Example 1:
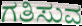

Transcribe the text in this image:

ಗತಿಸುವ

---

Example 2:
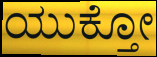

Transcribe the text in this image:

ಯುಕ್ತೋ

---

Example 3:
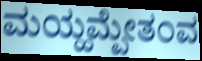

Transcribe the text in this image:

ಮಯ್ಹಮ್ಪೇತಂವ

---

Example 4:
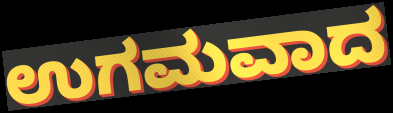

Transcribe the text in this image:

ಉಗಮವಾದ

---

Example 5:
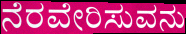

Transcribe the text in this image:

ನೆರವೇರಿಸುವನು